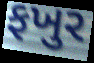
ફખુર